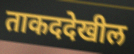
ताकददेखील